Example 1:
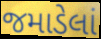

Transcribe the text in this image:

જમાડેલાં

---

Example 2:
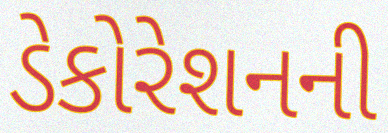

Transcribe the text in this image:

ડેકોરેશનની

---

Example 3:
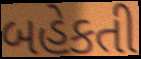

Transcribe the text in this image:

બહેકતી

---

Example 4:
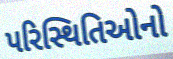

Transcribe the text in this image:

પરિસ્થિતિઓનો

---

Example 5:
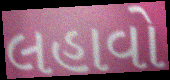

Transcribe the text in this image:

લહાવો